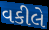
વકીલે